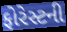
ફોરેસ્ટની